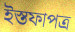
ইস্তফাপত্র